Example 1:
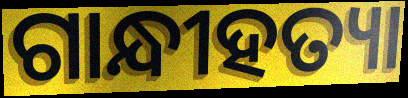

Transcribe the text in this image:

ଗାନ୍ଧୀହତ୍ୟା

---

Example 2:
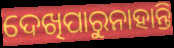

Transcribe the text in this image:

ଦେଖିପାରୁନାହାନ୍ତି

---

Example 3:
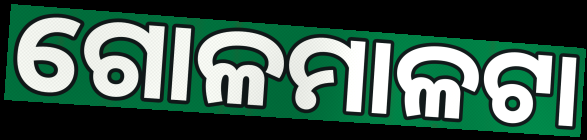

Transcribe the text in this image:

ଗୋଳମାଳଟା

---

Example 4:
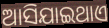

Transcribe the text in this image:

ଆସିଯାଇଥାଏ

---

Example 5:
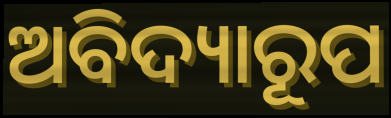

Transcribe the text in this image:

ଅବିଦ୍ୟାରୂପ